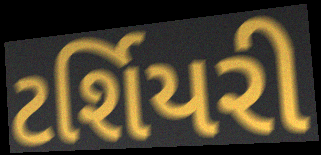
ટર્શિયરી